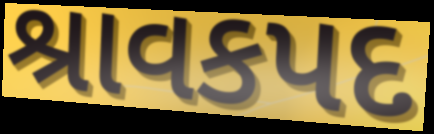
શ્રાવકપદ